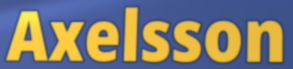
Axelsson